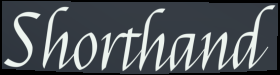
Shorthand